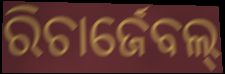
ରିଚାର୍ଜେବଲ୍